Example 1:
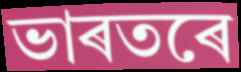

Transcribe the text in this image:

ভাৰতৰে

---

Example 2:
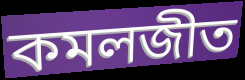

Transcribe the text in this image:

কমলজীত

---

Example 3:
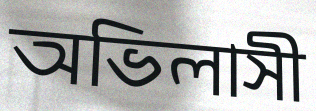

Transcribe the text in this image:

অভিলাসী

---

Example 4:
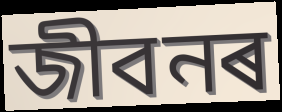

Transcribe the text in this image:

জীবনৰ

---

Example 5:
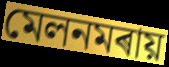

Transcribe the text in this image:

মেলনমৰায়